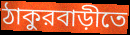
ঠাকুরবাড়ীতে